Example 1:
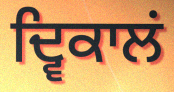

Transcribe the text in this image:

ਦ੍ਵਿਕਾਲਂ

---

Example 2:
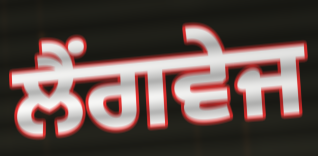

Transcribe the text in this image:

ਲੈਂਗਵੇਜ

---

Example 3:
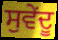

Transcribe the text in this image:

ਸੁਵੇਂਦੂ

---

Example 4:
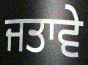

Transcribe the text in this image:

ਜਤਾਵੇ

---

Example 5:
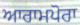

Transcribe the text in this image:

ਆਰਾਮਪੋਰਾ